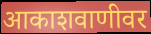
आकाशवाणीवर